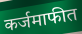
कर्जमाफीत